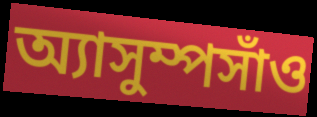
অ্যাসুম্পসাঁও